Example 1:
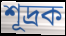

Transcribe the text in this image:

শূদ্ৰক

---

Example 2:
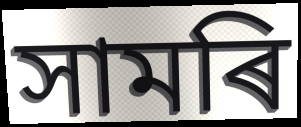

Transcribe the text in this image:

সামৰি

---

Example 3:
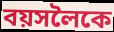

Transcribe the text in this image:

বয়সলৈকে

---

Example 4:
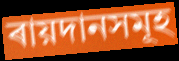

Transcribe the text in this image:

ৰায়দানসমূহ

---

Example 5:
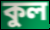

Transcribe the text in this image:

কুল